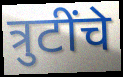
त्रुटींचे